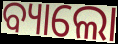
ବ୍ୟାଲୋ